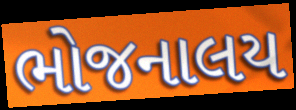
ભોજનાલય